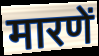
मारणें